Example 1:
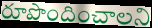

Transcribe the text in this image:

రూపొందించాలని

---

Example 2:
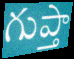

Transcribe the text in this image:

గుప్తా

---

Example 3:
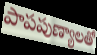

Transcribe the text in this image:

పాపపుణ్యాలతో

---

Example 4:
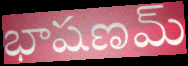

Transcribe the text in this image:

భాషణమ్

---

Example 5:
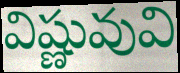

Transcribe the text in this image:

విష్ణువువి